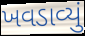
ખવડાવ્યું